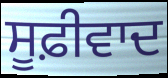
ਸੂਫ਼ੀਵਾਦ